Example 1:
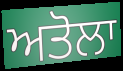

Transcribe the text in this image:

ਅਤੋਲਾ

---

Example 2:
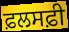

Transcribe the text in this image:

ਫ਼ਲਸਫ਼ੀ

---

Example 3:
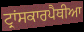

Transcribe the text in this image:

ਟ੍ਰਾਂਸਕਾਰਪੈਥੀਆ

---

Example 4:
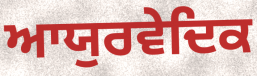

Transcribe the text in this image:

ਆਯੁਰਵੇਦਿਕ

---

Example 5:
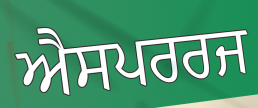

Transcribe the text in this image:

ਐਸਪਰਰਜ